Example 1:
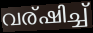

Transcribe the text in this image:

വര്ഷിച്ച്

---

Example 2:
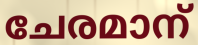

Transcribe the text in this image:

ചേരമാന്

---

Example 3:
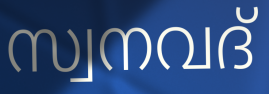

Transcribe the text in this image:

സ്വനവദ്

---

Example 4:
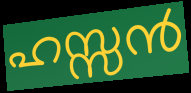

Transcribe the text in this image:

ഹസ്സൻ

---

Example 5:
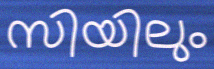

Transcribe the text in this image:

സിയിലും